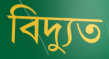
বিদ্যুত